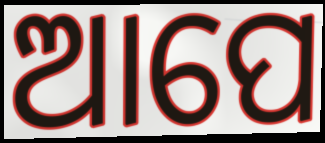
ଆପେ